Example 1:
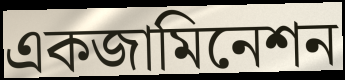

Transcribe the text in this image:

একজামিনেশন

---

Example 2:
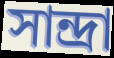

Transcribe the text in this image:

সান্দ্রা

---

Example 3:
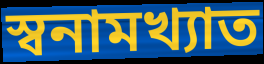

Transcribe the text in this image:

স্বনামখ্যাত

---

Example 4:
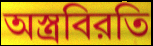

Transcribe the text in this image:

অস্ত্রবিরতি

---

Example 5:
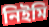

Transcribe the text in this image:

নিইমি